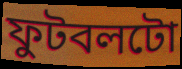
ফুটবলটো